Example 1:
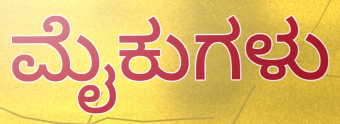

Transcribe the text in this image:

ಮೈಕುಗಳು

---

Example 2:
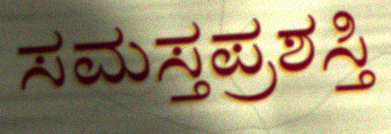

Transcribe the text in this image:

ಸಮಸ್ತಪ್ರಶಸ್ತಿ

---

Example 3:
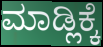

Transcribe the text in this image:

ಮಾಡ್ಲಿಕ್ಕೆ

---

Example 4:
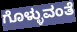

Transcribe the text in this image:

ಗೊಳ್ಳುವಂತೆ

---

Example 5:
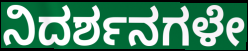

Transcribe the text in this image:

ನಿದರ್ಶನಗಳೇ